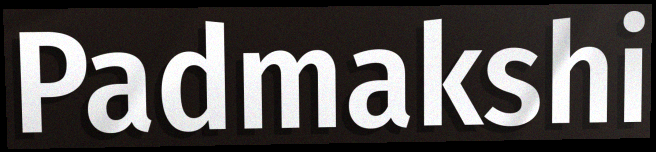
Padmakshi